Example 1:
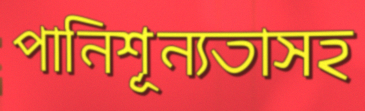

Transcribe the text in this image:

পানিশূন্যতাসহ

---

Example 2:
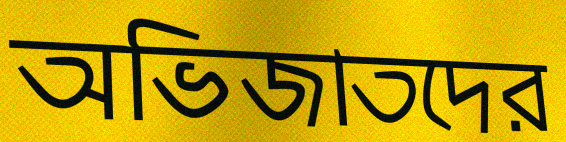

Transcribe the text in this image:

অভিজাতদের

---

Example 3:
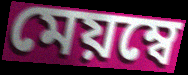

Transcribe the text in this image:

মেয়ম্বে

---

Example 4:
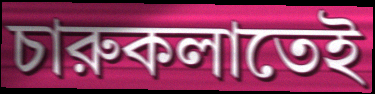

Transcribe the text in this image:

চারুকলাতেই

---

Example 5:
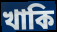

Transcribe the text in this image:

খাকি